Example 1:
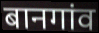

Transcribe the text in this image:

बानगांव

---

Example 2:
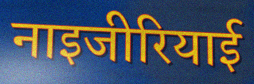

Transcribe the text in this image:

नाइजीरियाई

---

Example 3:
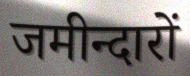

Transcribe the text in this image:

जमीन्दारों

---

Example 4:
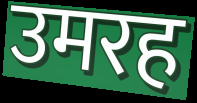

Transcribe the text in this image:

उमरह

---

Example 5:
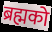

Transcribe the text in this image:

ब्रह्मको